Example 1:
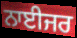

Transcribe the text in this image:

ਨਾਈਜਰ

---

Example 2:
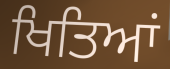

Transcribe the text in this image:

ਖਿਤਿਆਂ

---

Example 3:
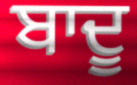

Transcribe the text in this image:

ਬਾਦੂ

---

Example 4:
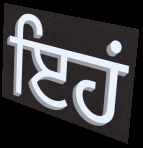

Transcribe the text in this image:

ਇਹਂ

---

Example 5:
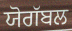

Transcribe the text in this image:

ਯੋਗੱਬਲ